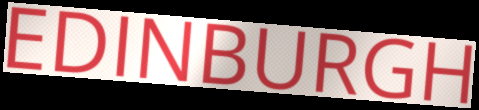
EDINBURGH